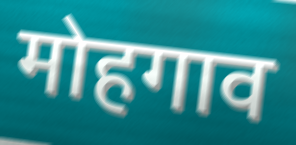
मोहगाव